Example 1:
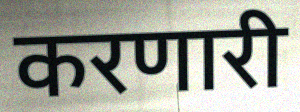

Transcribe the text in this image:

करणारी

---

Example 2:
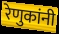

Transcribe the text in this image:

रेणुकांनी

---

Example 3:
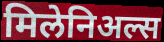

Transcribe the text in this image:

मिलेनिअल्स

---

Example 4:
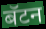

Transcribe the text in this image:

बॅटन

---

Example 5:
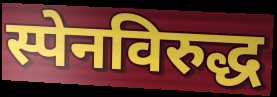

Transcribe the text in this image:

स्पेनविरुद्ध